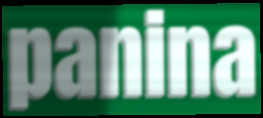
panina